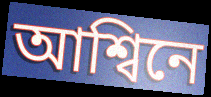
আশ্বিনে